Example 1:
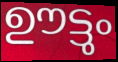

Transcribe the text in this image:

ഊട്ടും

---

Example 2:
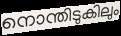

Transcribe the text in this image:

നൊന്തിടുകിലും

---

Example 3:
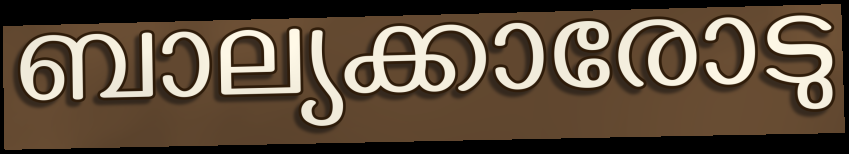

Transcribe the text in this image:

ബാല്യക്കാരോടു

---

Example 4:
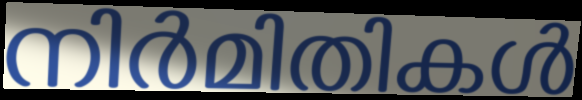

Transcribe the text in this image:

നിർമിതികൾ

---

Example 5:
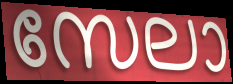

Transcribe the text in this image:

സേലാ